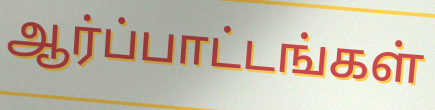
ஆர்ப்பாட்டங்கள்